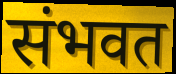
संभवत